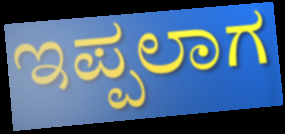
ಇಪ್ಪಲಾಗ